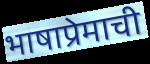
भाषाप्रेमाची